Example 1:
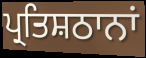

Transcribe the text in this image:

ਪ੍ਰਤਿਸ਼ਠਾਨਾਂ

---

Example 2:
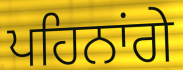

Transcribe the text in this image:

ਪਹਿਨਾਂਗੇ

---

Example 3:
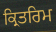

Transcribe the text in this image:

ਕ੍ਰਿਤਰਿਮ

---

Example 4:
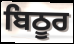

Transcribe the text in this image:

ਬਿਠੂਰ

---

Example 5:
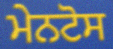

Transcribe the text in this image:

ਮੇਨਟੋਸ